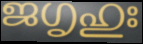
ജഗൃഹുഃ